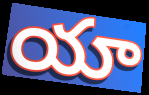
యా